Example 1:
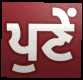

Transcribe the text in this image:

ਪੁਣੇਂ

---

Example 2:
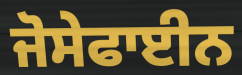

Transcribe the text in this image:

ਜੋਸੇਫਾਈਨ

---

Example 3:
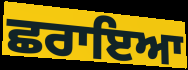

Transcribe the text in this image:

ਛਰਾਇਆ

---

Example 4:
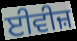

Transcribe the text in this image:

ਈਵੀਜ਼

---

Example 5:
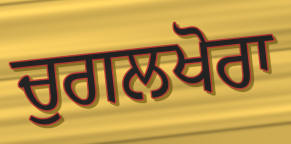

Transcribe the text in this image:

ਚੁਗਲਖੋਰਾ